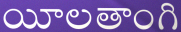
యీలతాంగి